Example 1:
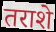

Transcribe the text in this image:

तराशे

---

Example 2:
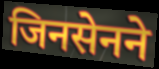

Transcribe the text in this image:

जिनसेनने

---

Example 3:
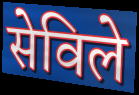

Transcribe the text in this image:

सेविले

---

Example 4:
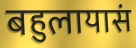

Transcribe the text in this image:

बहुलायासं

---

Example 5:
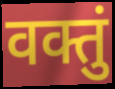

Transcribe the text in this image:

वक्तुं